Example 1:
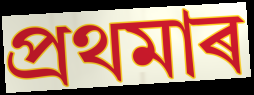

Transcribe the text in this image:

প্ৰথমাৰ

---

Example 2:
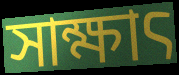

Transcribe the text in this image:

সাক্ষাৎ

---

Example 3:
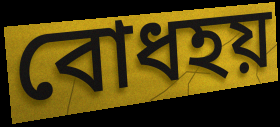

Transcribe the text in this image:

বোধহয়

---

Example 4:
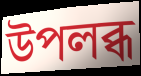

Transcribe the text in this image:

উপলব্ধ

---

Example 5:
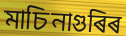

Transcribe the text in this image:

মাচিনাগুৰিৰ